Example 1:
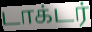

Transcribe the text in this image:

டாக்டர்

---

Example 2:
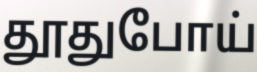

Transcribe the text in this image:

தூதுபோய்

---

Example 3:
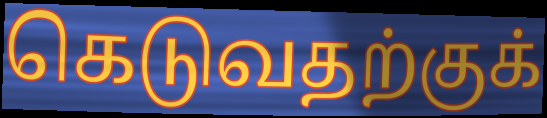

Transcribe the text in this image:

கெடுவதற்குக்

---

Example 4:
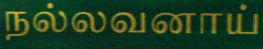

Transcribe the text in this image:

நல்லவனாய்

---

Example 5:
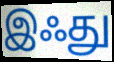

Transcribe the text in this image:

இஃது